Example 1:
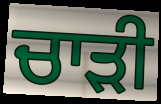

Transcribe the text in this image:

ਚਾਡ਼ੀ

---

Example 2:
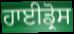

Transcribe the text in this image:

ਹਾਈਡ੍ਰੋਸ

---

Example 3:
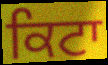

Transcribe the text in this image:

ਕਿਟਾ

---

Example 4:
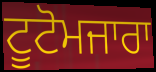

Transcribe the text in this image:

ਟੂਟੋਮਜਾਰਾ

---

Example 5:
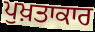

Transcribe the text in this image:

ਪੁਖ਼ਤਾਕਾਰ